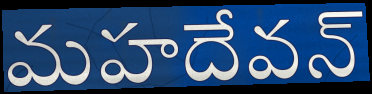
మహదేవన్